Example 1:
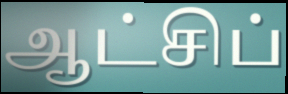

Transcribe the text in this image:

ஆட்சிப்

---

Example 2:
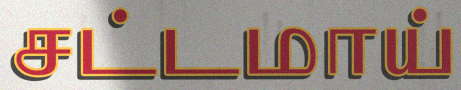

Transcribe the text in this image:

சட்டமாய்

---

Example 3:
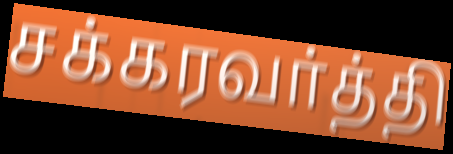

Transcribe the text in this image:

சக்கரவர்த்தி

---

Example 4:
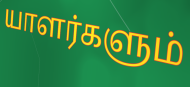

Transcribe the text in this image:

யாளர்களும்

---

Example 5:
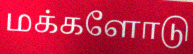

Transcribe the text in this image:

மக்களோடு